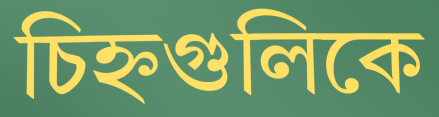
চিহ্নগুলিকে